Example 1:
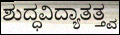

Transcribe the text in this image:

ಶುದ್ಧವಿದ್ಯಾತತ್ತ್ವ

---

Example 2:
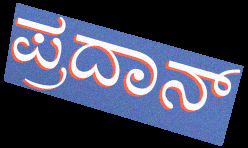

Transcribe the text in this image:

ಪ್ರದಾನ್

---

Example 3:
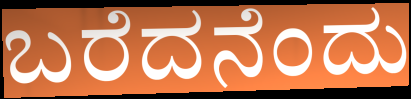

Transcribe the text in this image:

ಬರೆದನೆಂದು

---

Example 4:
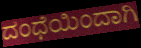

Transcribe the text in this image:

ದಂಧೆಯಿಂದಾಗಿ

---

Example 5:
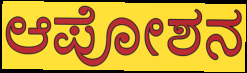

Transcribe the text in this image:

ಆಪೋಶನ